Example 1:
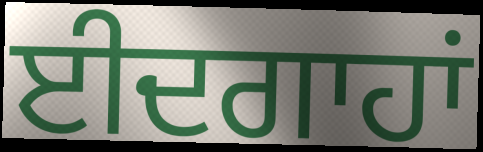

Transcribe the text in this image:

ਈਦਗਾਹਾਂ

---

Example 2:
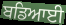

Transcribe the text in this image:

ਬਡਿਆਈ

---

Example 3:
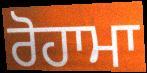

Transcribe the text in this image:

ਰੋਹਾਮਾ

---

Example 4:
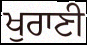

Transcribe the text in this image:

ਖੁਰਾਣੀ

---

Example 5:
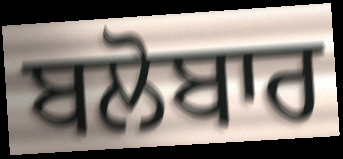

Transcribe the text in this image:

ਬਲੋਬਾਰ